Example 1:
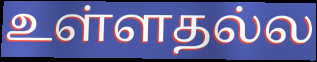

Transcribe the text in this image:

உள்ளதல்ல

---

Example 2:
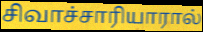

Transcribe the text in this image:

சிவாச்சாரியாரால்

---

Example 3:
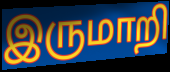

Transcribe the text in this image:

இருமாறி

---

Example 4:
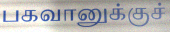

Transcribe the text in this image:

பகவானுக்குச்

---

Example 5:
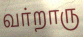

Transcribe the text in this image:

வர்றாரு